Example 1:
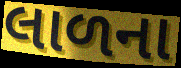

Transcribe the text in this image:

લાળના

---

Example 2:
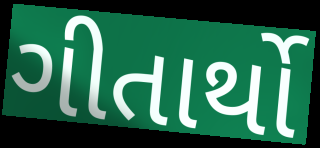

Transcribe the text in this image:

ગીતાર્થો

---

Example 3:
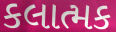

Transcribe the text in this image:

કલાત્મક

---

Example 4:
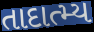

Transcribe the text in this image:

તાદાત્મ્ય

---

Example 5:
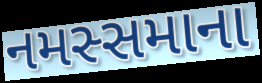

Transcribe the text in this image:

નમસ્સમાના